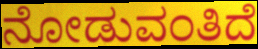
ನೋಡುವಂತಿದೆ